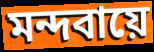
মন্দবায়ে